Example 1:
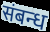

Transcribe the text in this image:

संबन्ध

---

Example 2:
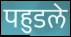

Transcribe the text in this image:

पहुडले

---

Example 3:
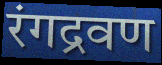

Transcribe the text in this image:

रंगद्रवण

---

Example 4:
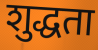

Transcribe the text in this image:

शुद्धता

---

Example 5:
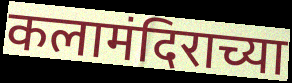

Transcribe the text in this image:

कलामंदिराच्या